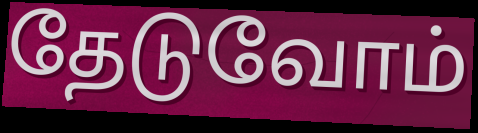
தேடுவோம்